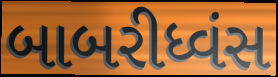
બાબરીધ્વંસ